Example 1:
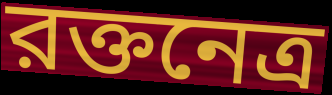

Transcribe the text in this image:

রক্তনেত্র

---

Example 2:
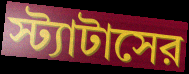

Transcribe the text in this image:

স্ট্যাটাসের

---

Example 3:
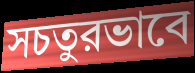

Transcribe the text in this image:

সচতুরভাবে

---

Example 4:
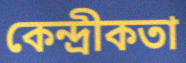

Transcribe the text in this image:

কেন্দ্রীকতা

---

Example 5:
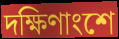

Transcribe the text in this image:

দক্ষিণাংশে